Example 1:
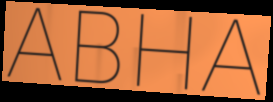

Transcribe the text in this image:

ABHA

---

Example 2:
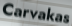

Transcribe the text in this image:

Carvakas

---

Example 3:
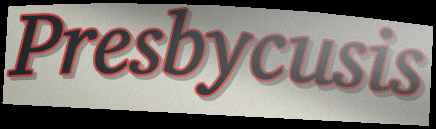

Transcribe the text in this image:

Presbycusis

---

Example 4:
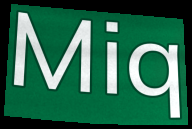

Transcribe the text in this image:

Miq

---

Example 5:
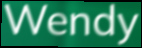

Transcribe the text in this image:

Wendy